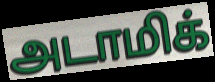
அடாமிக்